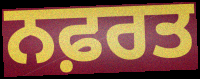
ਨਫ਼ਰਤ